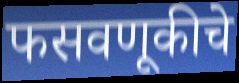
फसवणूकीचे